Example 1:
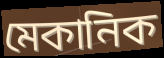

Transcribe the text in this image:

মেকানিক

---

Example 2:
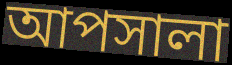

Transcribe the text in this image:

আপসালা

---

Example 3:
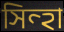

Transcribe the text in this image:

সিন্হা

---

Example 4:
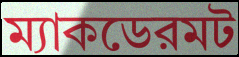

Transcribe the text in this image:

ম্যাকডেরমট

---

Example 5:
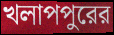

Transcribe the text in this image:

খলাপপুরের